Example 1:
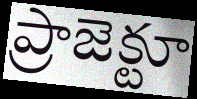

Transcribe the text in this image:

ప్రాజెక్టూ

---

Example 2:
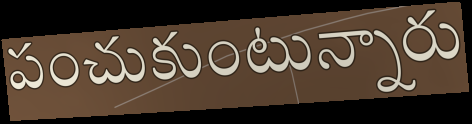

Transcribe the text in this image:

పంచుకుంటున్నారు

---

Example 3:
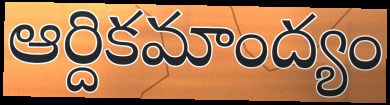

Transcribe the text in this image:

ఆర్దికమాంద్యం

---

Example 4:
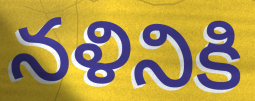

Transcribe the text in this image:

నళినికి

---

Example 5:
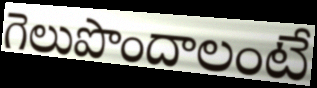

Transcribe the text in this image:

గెలుపొందాలంటే